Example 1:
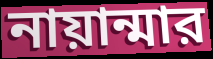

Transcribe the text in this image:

নায়ান্মার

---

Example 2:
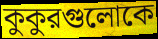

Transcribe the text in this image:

কুকুরগুলোকে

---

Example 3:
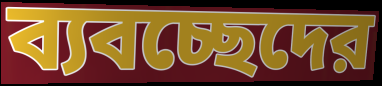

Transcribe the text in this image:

ব্যবচ্ছেদের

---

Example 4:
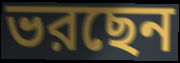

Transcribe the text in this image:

ভরছেন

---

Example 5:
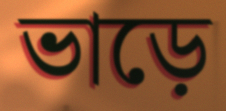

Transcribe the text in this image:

ভাড়ে